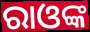
ରାଓଙ୍କ